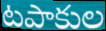
టపాకుల